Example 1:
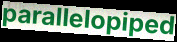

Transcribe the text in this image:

parallelopiped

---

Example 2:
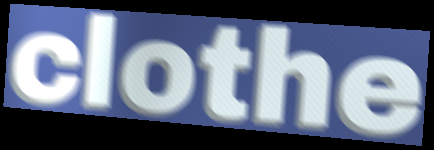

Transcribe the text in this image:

clothe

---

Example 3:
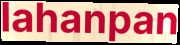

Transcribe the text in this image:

lahanpan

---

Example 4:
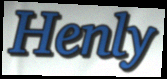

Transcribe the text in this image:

Henly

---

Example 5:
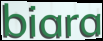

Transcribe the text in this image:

biara